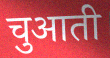
चुआती